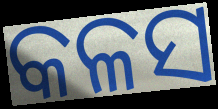
କଳସ